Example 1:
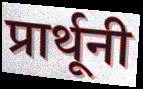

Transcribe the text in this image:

प्रार्थूनी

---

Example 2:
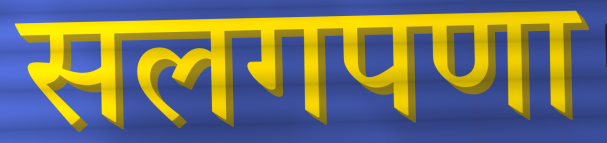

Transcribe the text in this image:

सलगपणा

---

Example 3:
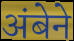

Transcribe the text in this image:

अंबेने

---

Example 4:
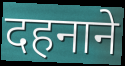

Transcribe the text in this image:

दहनाने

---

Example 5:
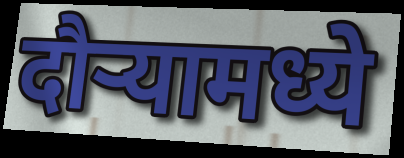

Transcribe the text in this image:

दौऱ्यामध्ये